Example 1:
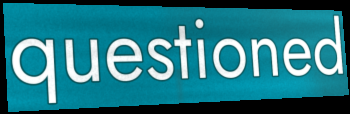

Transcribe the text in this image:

questioned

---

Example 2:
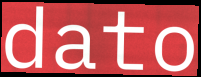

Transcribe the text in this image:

dato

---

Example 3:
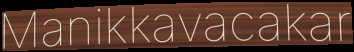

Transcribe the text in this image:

Manikkavacakar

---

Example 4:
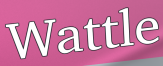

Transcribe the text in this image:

Wattle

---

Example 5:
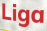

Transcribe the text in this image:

Liga